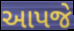
આપજે